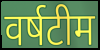
वर्षटीम